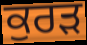
ਕੁਰੜ